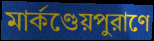
মার্কণ্ডেয়পুরাণে